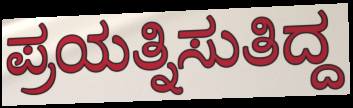
ಪ್ರಯತ್ನಿಸುತಿದ್ದ